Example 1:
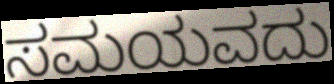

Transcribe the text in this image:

ಸಮಯವದು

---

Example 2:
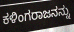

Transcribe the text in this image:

ಕಳಿಂಗರಾಜನನ್ನು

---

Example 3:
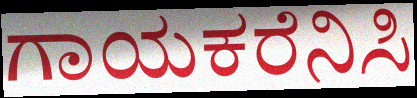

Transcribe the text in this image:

ಗಾಯಕರೆನಿಸಿ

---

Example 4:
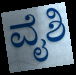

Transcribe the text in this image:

ವೈಶಿ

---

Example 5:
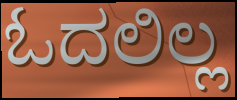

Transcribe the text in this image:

ಓದಲಿಲ್ಲ